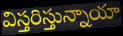
విస్తరిస్తున్నాయా